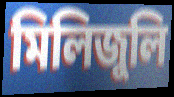
মিলিজুলি